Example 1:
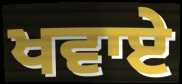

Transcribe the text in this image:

ਖਵਾਏ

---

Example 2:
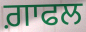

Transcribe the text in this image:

ਗ਼ਾਫਲ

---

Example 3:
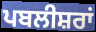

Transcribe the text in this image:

ਪਬਲੀਸ਼ਰਾਂ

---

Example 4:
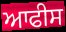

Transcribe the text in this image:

ਆਫੀਸ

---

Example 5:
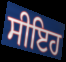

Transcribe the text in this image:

ਸੀਇਹ